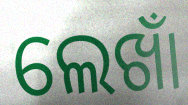
ଲେଖାଁ